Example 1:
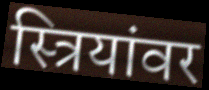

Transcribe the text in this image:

स्त्रियांवर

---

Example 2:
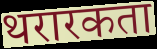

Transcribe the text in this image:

थरारकता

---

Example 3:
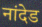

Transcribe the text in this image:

नांदेड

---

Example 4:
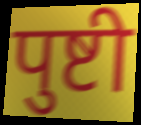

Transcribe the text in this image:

पुष्टी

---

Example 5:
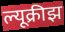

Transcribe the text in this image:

ल्यूक्रीझ